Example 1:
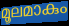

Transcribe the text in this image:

മൂലമാകും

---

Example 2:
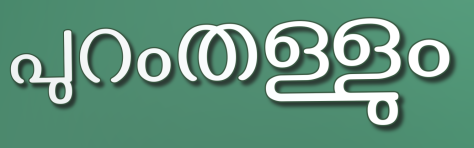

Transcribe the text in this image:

പുറംതള്ളും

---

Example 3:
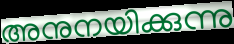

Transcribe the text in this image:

അനുനയിക്കുന്നു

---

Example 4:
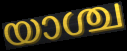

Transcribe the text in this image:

യാശ്ച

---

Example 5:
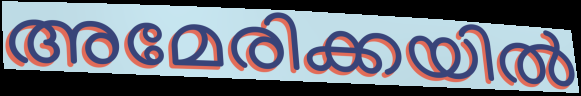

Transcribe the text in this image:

അമേരിക്കയിൽ